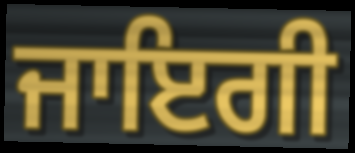
ਜਾਇਗੀ